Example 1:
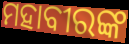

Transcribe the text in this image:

ମହାବୀରଙ୍କ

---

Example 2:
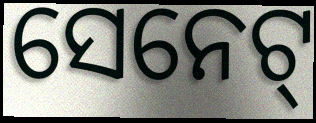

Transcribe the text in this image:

ସେନେଟ୍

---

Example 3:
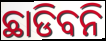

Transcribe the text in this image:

ଛାଡିବନି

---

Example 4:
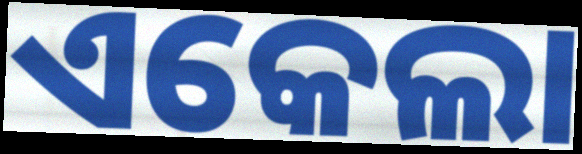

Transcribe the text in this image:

ଏକେଲା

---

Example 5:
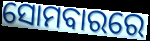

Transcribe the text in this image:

ସୋମବାରରେ